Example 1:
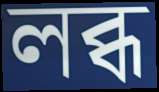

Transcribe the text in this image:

লব্ধ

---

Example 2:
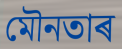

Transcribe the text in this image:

মৌনতাৰ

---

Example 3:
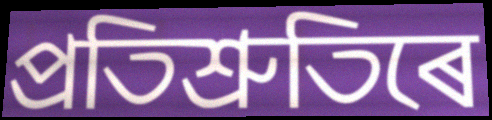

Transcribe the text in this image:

প্ৰতিশ্ৰুতিৰে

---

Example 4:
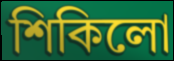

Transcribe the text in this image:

শিকিলো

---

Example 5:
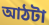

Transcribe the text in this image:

আঠটা